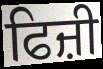
ਫਿਜ਼ੀ